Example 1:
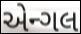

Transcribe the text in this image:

એન્ગલ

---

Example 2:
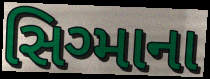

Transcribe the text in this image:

સિગ્માના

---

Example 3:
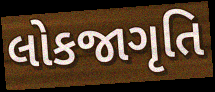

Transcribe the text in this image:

લોકજાગૃતિ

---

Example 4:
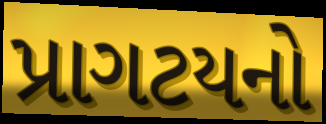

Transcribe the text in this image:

પ્રાગટયનો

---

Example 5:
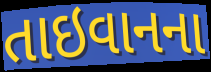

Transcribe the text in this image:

તાઇવાનના